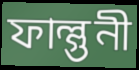
ফাল্গুনী